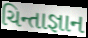
ચિન્તાજ્ઞાન